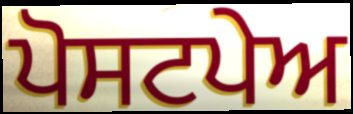
ਪੋਸਟਪੇਅ